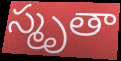
స్మృతా